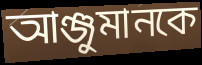
আঞ্জুমানকে